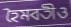
হৈমবতীও